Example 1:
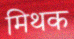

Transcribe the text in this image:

मिथक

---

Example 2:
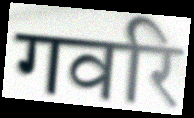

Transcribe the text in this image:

गवरि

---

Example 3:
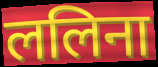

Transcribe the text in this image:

ललिना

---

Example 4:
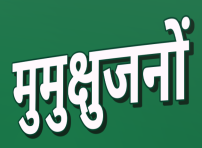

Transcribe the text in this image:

मुमुक्षुजनों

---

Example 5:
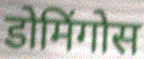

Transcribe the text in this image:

डोमिंगोस